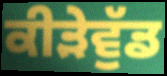
ਕੀੜੇਵੁੱਡ